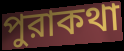
পুরাকথা